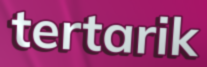
tertarik